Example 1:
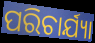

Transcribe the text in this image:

ପରିଚାର୍ଯ୍ୟା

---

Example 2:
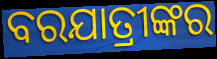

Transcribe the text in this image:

ବରଯାତ୍ରୀଙ୍କର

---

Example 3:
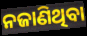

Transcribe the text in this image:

ନଜାଣିଥିବା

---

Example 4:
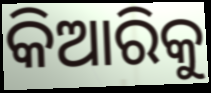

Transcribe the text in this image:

କିଆରିକୁ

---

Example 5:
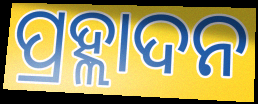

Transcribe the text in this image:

ପ୍ରହ୍ଲାଦନ